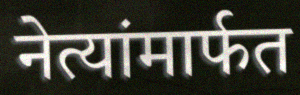
नेत्यांमार्फत